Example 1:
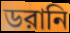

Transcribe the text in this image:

ডরানি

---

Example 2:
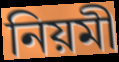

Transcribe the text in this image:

নিয়মী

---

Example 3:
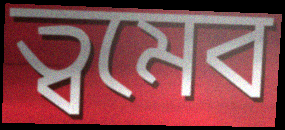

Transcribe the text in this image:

ত্বমেব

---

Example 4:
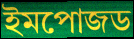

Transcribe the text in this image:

ইমপোজড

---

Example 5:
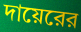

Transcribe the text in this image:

দায়েরের